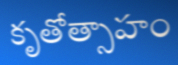
కృతోత్సాహం